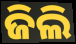
ଜିଲି